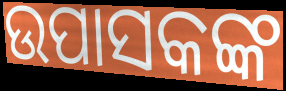
ଉପାସକଙ୍କ